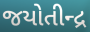
જયોતીન્દ્ર